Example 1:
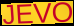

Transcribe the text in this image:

JEVO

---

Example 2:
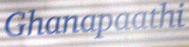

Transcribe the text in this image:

Ghanapaathi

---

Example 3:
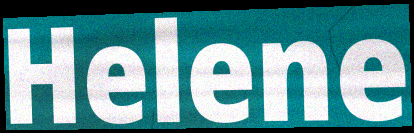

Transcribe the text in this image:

Helene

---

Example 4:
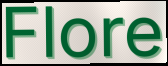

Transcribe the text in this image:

Flore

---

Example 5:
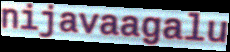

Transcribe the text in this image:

nijavaagalu